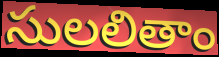
సులలితాం